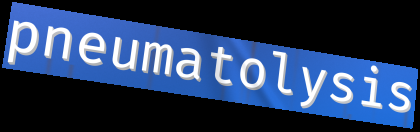
pneumatolysis